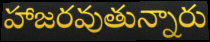
హాజరవుతున్నారు